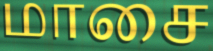
மாசை